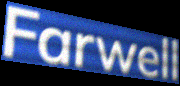
Farwell